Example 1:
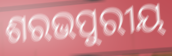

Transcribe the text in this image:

ଶରଭପୁରୀୟ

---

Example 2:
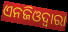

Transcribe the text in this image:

ଏନଜିଓଦ୍ୱାରା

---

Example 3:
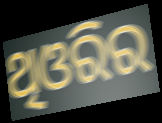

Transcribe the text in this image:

ଥିଓରିର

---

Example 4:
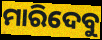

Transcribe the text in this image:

ମାରିଦେବୁ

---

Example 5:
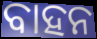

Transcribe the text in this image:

ବାହନ